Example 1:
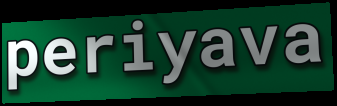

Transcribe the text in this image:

periyava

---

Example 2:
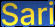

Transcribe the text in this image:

Sari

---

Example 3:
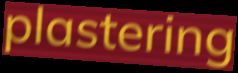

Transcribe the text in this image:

plastering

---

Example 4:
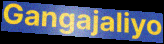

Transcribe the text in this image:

Gangajaliyo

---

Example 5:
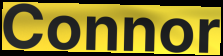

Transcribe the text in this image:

Connor